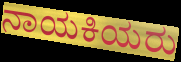
ನಾಯಕಿಯರು